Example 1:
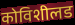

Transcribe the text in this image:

कोविशीलड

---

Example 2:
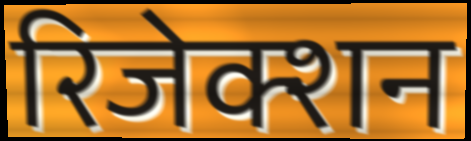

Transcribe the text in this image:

रिजेक्शन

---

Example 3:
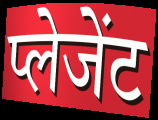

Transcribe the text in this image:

प्लेजेंट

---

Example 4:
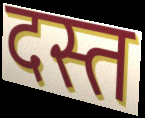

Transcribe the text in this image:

दस्त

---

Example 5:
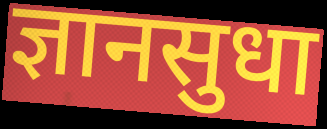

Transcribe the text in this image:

ज्ञानसुधा